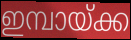
ഇമ്പായ്ക്ക